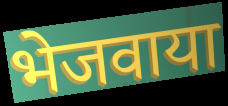
भेजवाया